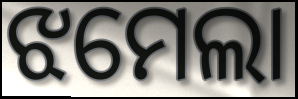
ଝମେଲା